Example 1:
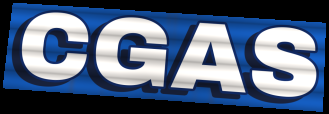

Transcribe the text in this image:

CGAS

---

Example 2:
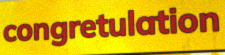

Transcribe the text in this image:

congretulation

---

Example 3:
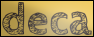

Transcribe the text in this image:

deca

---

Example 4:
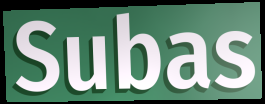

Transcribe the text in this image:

Subas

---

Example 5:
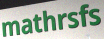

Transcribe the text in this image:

mathrsfs